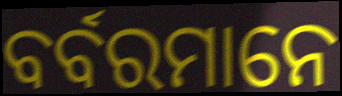
ବର୍ବରମାନେ